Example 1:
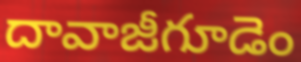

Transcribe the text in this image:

దావాజీగూడెం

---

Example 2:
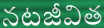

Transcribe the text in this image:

నటజీవిత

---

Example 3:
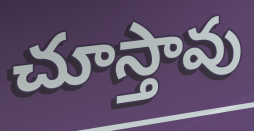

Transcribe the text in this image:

చూస్తావు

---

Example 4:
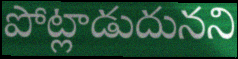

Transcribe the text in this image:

పోట్లాడుదునని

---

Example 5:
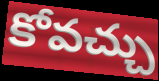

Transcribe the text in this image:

కోవచ్చు